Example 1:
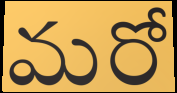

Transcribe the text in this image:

మరో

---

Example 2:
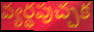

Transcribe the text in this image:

వ్యర్థపుచ్చక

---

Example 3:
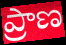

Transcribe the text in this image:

ప్రాణ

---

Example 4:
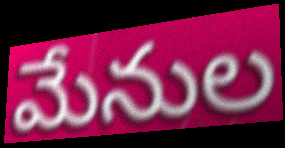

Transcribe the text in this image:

మేనుల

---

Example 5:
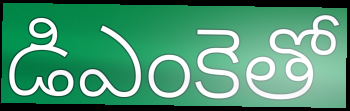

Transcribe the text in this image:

డిఎంకెతో